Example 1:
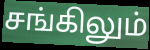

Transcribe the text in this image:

சங்கிலும்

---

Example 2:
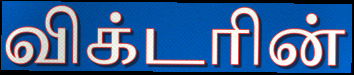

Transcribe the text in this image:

விக்டரின்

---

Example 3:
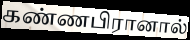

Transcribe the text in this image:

கண்ணபிரானால்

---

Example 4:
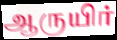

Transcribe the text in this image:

ஆருயிர்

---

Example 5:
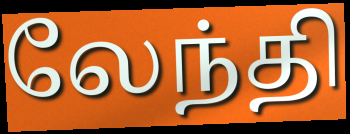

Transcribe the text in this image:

லேந்தி